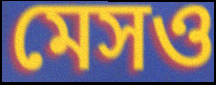
মেসও